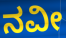
ನವೀ